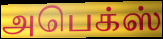
அபெக்ஸ்